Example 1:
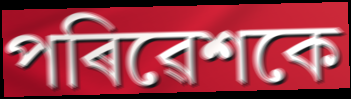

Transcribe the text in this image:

পৰিৱেশকে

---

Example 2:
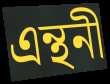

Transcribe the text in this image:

এন্থনী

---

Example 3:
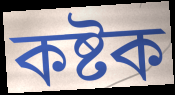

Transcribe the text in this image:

কষ্টক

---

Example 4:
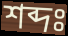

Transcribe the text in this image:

শব্দঃ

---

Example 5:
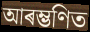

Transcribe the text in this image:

আৰম্ভণিত